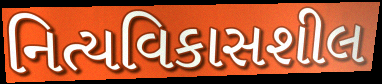
નિત્યવિકાસશીલ